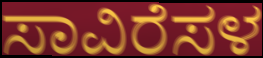
ಸಾವಿರೆಸಳ